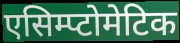
एसिम्प्टोमेटिक